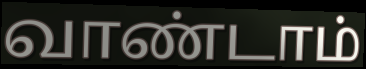
வாண்டாம்